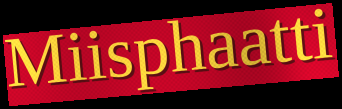
Miisphaatti